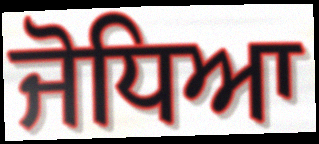
ਜੋਧਿਆ